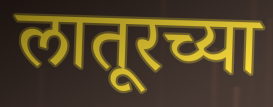
लातूरच्या